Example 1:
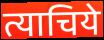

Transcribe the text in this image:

त्याचिये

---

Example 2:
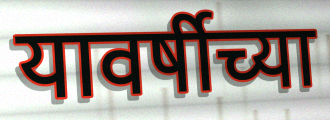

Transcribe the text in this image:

यावर्षीच्या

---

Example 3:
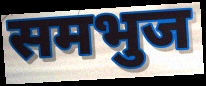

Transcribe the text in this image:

समभुज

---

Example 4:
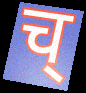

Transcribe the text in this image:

च्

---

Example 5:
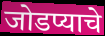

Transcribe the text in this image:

जोडप्याचे